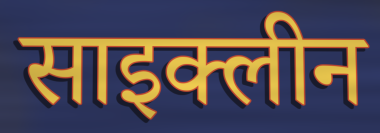
साइक्लीन